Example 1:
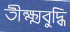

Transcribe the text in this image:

তীক্ষ্মবুদ্ধি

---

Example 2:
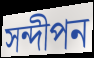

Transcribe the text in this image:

সন্দীপন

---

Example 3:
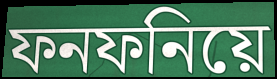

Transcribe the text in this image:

ফনফনিয়ে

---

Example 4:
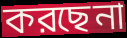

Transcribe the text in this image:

করছেনা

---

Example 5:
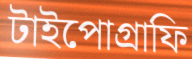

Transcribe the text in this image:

টাইপোগ্রাফি